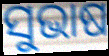
ସୁଭାଷ